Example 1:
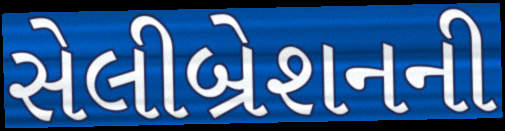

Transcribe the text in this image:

સેલીબ્રેશનની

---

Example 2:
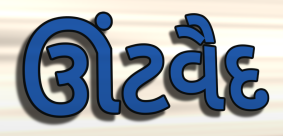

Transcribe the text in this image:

ઊંટવૈદ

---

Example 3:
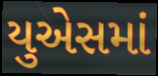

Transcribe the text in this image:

યુએસમાં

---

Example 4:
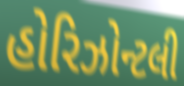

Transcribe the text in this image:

હોરિઝોન્ટલી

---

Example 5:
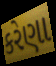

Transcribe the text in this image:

કરેણા